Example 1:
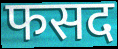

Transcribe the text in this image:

फसद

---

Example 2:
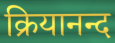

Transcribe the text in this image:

क्रियानन्द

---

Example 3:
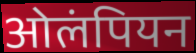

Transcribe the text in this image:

ओलंपियन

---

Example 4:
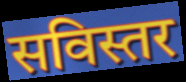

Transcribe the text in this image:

सविस्तर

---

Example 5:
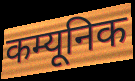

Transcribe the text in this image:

कम्यूनिक